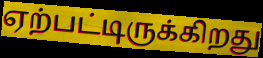
ஏற்பட்டிருக்கிறது